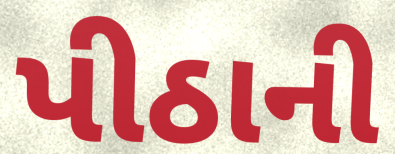
પીઠાની